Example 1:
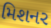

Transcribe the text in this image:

મિશનર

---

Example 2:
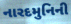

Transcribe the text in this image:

નારદમુનિની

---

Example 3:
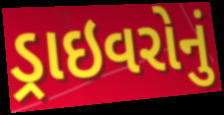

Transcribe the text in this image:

ડ્રાઇવરોનું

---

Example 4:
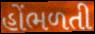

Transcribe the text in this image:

હોંભળતી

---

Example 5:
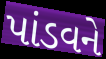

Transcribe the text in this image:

પાંડવને